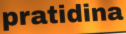
pratidina